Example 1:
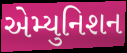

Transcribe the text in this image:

એમ્યુનિશન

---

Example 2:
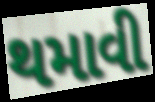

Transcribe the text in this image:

થમાવી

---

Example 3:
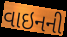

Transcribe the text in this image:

વાઇનની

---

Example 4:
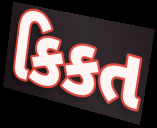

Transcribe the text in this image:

કિકત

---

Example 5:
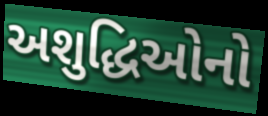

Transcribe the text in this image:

અશુદ્ધિઓનો